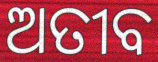
ଅତୀବ